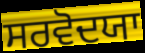
ਸਰਵੋਦਯਾ